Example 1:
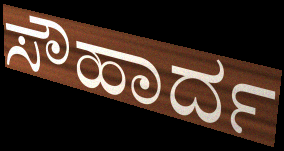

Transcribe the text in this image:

ಸೌಹಾರ್ದ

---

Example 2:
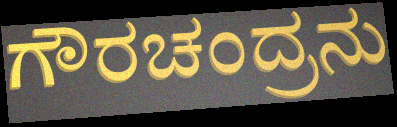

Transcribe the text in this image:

ಗೌರಚಂದ್ರನು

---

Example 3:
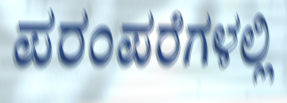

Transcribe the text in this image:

ಪರಂಪರೆಗಳಲ್ಲಿ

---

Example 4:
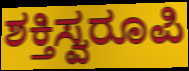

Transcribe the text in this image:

ಶಕ್ತಿಸ್ವರೂಪಿ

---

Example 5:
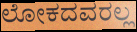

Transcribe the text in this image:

ಲೋಕದವರಲ್ಲ